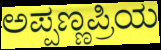
ಅಪ್ಪಣ್ಣಪ್ರಿಯ